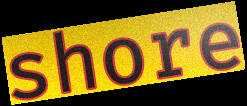
shore